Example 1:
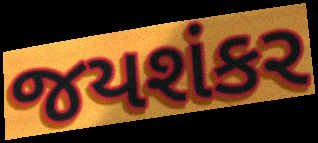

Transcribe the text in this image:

જયશંકર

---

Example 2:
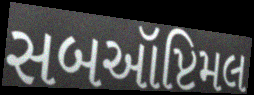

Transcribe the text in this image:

સબઑપ્ટિમલ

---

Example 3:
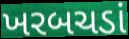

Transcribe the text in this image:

ખરબચડાં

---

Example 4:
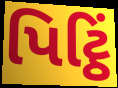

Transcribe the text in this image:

પિટ્ઠિં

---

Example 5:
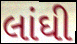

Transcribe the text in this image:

લાંઘી